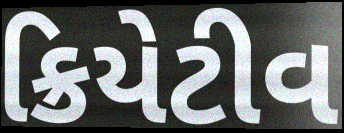
ક્રિયેટીવ